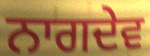
ਨਾਗਦੇਵ